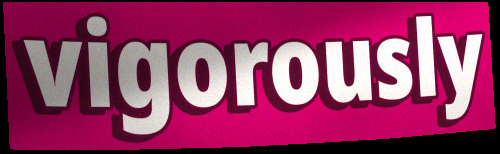
vigorously